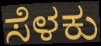
ಸೆಳಕು